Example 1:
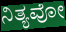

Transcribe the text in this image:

ನಿತ್ಯವೋ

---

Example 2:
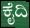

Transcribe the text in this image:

ಕೈದಿ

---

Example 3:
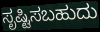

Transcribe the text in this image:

ಸೃಷ್ಟಿಸಬಹುದು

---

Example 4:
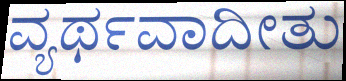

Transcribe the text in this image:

ವ್ಯರ್ಥವಾದೀತು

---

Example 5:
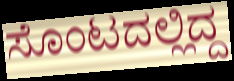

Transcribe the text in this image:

ಸೊಂಟದಲ್ಲಿದ್ದ